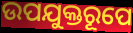
ଉପଯୁକ୍ତରୂପେ